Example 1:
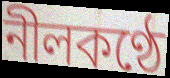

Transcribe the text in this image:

নীলকণ্ঠে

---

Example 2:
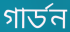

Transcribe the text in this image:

গার্ডন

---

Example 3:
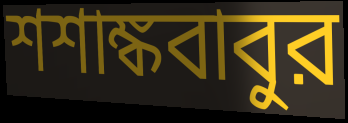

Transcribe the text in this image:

শশাঙ্কবাবুর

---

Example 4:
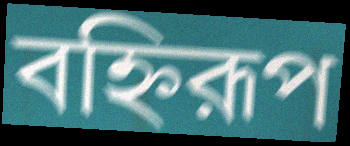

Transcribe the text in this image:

বহ্নিরূপ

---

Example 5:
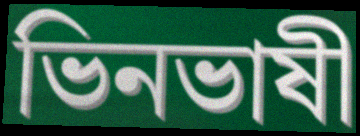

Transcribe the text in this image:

ভিনভাষী